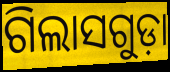
ଗିଲାସଗୁଡ଼ା